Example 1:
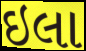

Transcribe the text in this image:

ઇલા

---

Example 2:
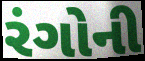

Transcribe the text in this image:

રંગોની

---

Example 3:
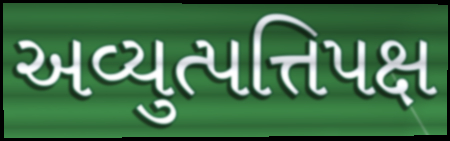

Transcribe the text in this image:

અવ્યુત્પત્તિપક્ષ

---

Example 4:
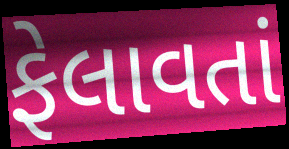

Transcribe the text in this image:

ફેલાવતાં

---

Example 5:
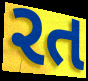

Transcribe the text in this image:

રત